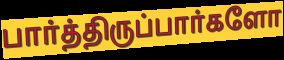
பார்த்திருப்பார்களோ